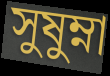
সুষুম্না